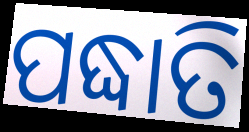
ପଦ୍ଧାତି